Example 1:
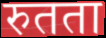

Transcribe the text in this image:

रुतता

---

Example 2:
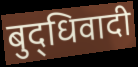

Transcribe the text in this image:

बुद्धिवादी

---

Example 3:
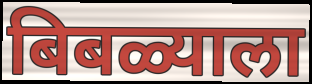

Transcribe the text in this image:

बिबळ्याला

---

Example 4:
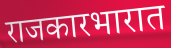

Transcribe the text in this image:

राजकारभारात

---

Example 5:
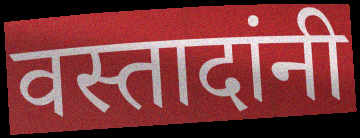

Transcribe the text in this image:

वस्तादांनी